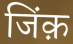
जिंक़